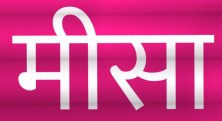
मीसा